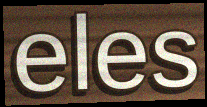
eles